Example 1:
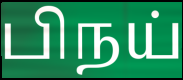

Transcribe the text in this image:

பிநய்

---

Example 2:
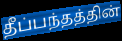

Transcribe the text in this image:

தீப்பந்தத்தின்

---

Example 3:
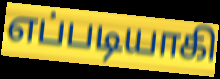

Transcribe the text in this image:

எப்படியாகி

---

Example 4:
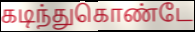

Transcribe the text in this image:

கடிந்துகொண்டே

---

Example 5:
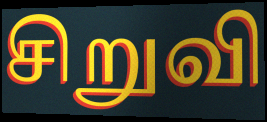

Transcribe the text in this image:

சிறுவி